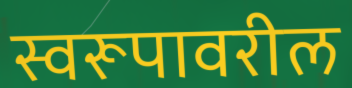
स्वरूपावरील